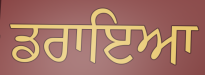
ਡਰਾਇਆ